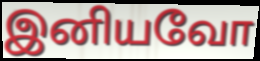
இனியவோ